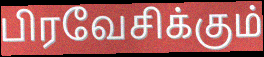
பிரவேசிக்கும்